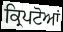
ਕ੍ਰਿਪਟੋਆਂ